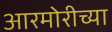
आरमोरीच्या